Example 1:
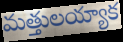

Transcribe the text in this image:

మత్తులయ్యాక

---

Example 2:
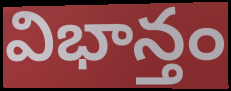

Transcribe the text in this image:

విభాన్తం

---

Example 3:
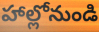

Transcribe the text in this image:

హాల్లోనుండి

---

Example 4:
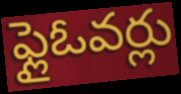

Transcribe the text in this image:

ఫ్లైఓవర్లు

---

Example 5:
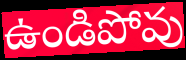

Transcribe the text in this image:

ఉండిపోవు